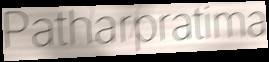
Patharpratima